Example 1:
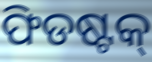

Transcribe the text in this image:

ଫିଡଷ୍ଟକ୍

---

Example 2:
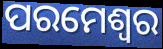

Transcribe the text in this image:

ପରମେଶ୍ବର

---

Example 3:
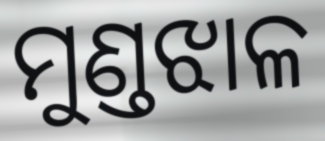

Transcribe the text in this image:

ମୁଣ୍ଡଝାଳ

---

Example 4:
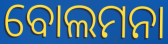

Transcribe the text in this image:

ବୋଲମନା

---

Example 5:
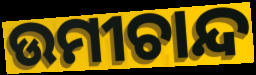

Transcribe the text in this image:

ଉମୀଚାନ୍ଦ